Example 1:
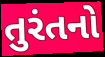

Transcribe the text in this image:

તુરંતનો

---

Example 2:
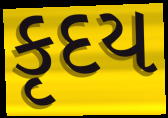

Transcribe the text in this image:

કૃદય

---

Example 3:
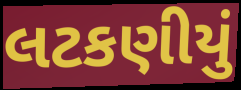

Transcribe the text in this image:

લટકણીયું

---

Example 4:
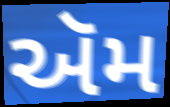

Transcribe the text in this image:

ઍમ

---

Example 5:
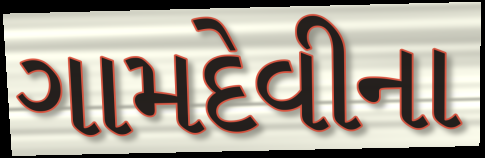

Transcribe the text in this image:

ગામદેવીના